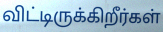
விட்டிருக்கிறீர்கள்